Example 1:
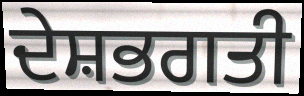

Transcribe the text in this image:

ਦੇਸ਼ਭਗਤੀ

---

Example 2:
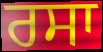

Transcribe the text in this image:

ਰਸਾ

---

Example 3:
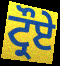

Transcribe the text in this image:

ਟ੍ਰੌਏ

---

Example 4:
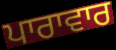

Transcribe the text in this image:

ਪਾਰਾਵਾਰ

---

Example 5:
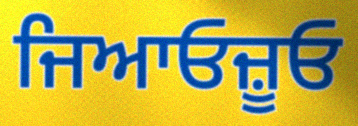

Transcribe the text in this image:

ਜਿਆਓਜ਼ੂਓ